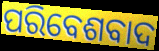
ପରିବେଶବାଦ